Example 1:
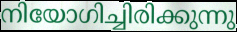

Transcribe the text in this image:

നിയോഗിച്ചിരിക്കുന്നു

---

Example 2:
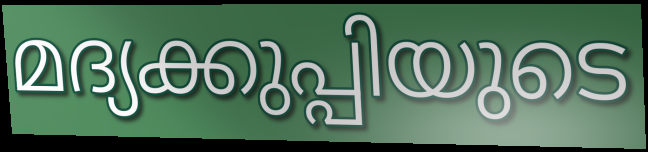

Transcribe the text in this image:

മദ്യക്കുപ്പിയുടെ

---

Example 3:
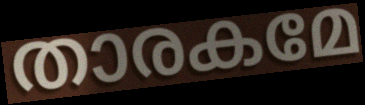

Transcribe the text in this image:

താരകമേ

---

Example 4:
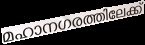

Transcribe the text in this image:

മഹാനഗരത്തിലേക്ക്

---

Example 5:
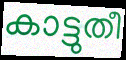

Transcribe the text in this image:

കാട്ടുതീ